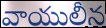
వాయులీన